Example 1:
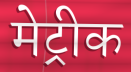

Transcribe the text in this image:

मेट्रीक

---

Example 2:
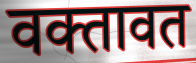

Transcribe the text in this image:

वक्तावत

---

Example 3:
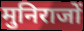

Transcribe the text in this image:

मुनिराजों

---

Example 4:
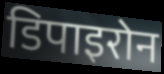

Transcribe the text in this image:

डिपाइरोन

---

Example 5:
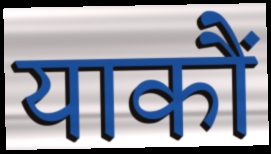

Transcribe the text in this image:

याकौं